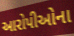
આરોપીઓના